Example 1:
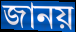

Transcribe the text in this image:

জানয়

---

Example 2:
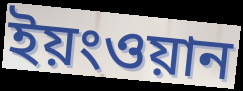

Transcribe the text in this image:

ইয়ংওয়ান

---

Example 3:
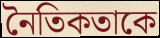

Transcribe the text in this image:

নৈতিকতাকে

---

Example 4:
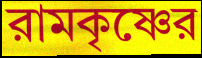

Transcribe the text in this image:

রামকৃষ্ণের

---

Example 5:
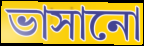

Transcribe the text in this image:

ভাসানো